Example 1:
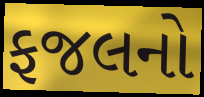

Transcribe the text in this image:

ફજલનો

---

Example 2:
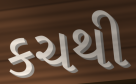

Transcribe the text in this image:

કચથી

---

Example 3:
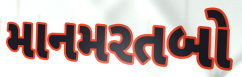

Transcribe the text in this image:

માનમરતબો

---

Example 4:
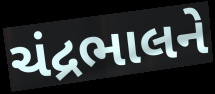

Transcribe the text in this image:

ચંદ્રભાલને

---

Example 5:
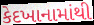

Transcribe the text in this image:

કેદખાનામાંથી